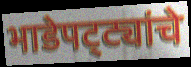
भाडेपट्ट्यांचे